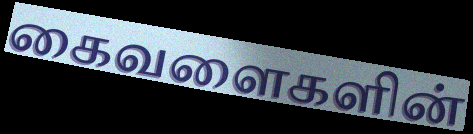
கைவளைகளின்